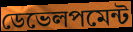
ডেভেলপমেন্ট